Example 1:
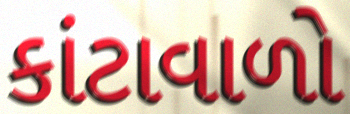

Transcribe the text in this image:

કાંટાવાળો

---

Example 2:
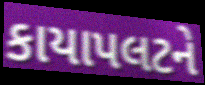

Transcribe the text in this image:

કાયાપલટને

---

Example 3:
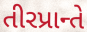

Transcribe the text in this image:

તીરપ્રાન્તે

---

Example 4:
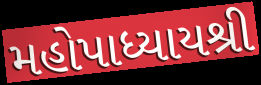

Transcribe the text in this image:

મહોપાધ્યાયશ્રી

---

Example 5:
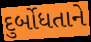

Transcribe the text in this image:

દુર્બોધતાને